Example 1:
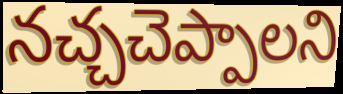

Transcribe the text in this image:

నచ్చచెప్పాలని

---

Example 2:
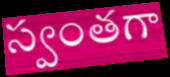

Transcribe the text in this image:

స్వంతగా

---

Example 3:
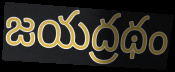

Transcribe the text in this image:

జయద్రథం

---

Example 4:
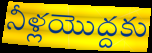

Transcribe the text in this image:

నీళ్లయొద్దకు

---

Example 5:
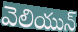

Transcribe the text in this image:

వెలియున్